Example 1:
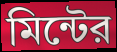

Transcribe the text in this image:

মিন্টের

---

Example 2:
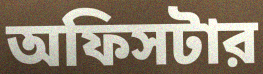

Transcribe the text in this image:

অফিসটার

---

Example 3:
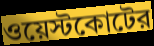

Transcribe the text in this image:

ওয়েস্টকোটের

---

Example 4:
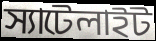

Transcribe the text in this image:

স্যাটেলাইট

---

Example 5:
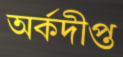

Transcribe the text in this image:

অর্কদীপ্ত